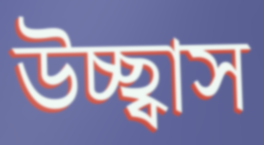
উচ্ছ্বাস